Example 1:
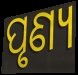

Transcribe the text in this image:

ପୃଣ୍ୟ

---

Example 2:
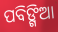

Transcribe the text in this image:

ପବିଙ୍ଗିଆ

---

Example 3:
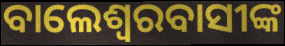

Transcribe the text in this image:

ବାଲେଶ୍ବରବାସୀଙ୍କ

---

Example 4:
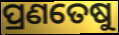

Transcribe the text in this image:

ପ୍ରଣତେଷୁ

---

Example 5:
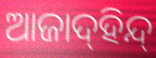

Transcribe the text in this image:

ଆଜାଦ୍‍ହିନ୍ଦ୍